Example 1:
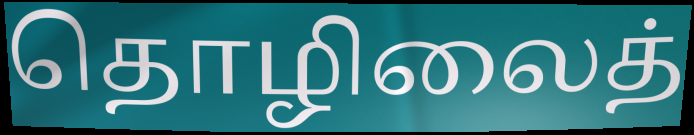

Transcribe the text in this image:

தொழிலைத்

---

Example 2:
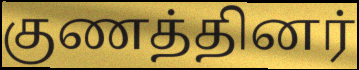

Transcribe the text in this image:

குணத்தினர்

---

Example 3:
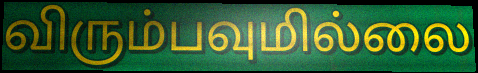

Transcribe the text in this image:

விரும்பவுமில்லை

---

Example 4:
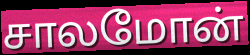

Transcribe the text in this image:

சாலமோன்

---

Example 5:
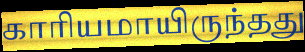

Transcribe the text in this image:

காரியமாயிருந்தது